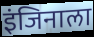
इंजिनाला